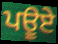
ਪਊਏ